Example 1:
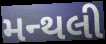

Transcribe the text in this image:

મન્થલી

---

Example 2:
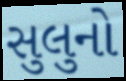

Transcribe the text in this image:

સુલુનો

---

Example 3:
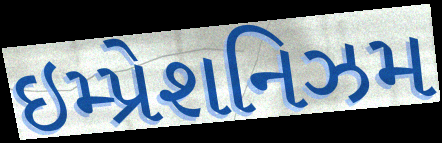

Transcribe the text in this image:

ઇમ્પ્રેશનિઝમ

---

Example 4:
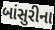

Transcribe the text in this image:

બાંસુરીના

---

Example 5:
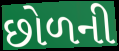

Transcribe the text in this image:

છોળની